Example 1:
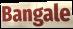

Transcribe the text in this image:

Bangale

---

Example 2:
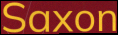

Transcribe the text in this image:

Saxon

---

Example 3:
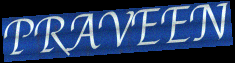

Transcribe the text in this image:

PRAVEEN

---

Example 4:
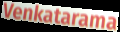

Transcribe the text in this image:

Venkatarama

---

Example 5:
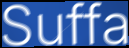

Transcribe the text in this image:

Suffa